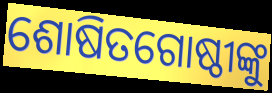
ଶୋଷିତଗୋଷ୍ଠୀଙ୍କୁ